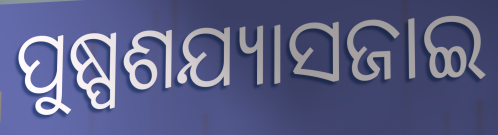
ପୁଷ୍ପଶଯ୍ୟାସଜାଇ